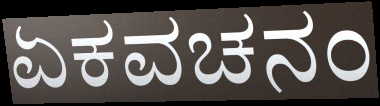
ಏಕವಚನಂ